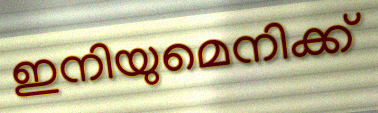
ഇനിയുമെനിക്ക്